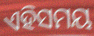
ଏହିସମୟ